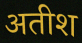
अतीश